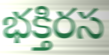
భక్తిరస